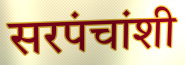
सरपंचांशी